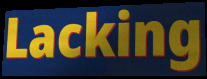
Lacking